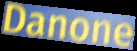
Danone